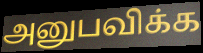
அனுபவிக்க